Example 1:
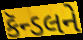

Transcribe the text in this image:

કૅન્ડલને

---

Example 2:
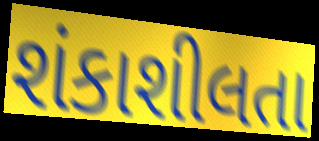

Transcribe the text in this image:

શંકાશીલતા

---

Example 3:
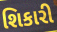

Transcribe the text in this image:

શિકારી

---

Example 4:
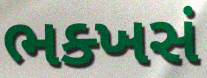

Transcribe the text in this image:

ભક્ખસં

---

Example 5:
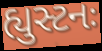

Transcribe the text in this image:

હ્યુસ્ટનઃ